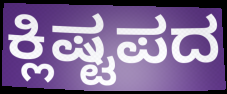
ಕ್ಲಿಷ್ಟಪದ